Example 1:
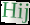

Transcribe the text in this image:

Hij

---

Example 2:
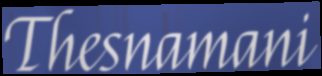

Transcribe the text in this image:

Thesnamani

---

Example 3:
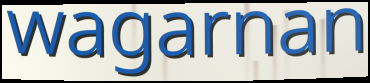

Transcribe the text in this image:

wagarnan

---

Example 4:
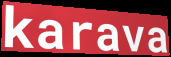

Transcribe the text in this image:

karava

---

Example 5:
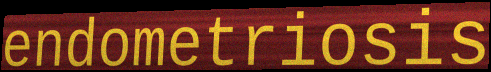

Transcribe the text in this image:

endometriosis